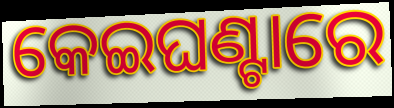
କେଇଘଣ୍ଟାରେ